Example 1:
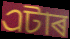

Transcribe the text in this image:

এটাৰ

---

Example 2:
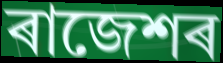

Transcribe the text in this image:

ৰাজেশৰ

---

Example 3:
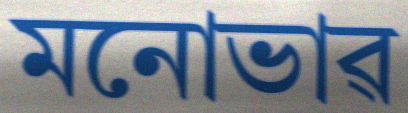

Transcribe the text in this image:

মনোভাৱ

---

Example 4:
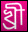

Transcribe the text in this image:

খ্ৰী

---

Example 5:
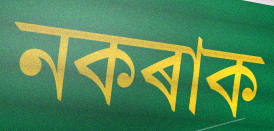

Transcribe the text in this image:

নকৰাক